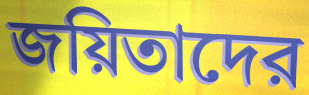
জয়িতাদের